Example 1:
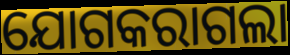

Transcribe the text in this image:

ଯୋଗକରାଗଲା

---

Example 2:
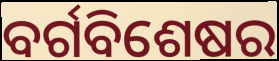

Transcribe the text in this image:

ବର୍ଗବିଶେଷର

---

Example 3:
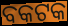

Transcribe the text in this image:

ବକଟକ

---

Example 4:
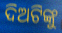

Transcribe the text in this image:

ଦିଅଟିଙ୍କୁ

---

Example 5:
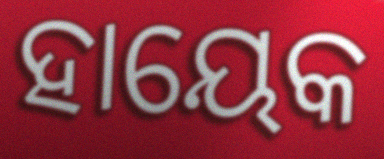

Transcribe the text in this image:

ହାୟେକ